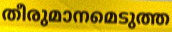
തീരുമാനമെടുത്ത